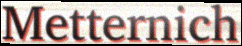
Metternich